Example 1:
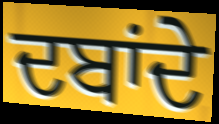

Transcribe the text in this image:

ਦਬਾਂਦੇ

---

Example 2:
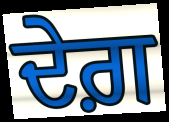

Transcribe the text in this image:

ਦੇਗ਼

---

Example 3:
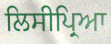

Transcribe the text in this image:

ਲਿਸੀਪ੍ਰਿਆ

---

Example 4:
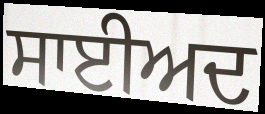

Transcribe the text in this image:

ਸਾਈਅਦ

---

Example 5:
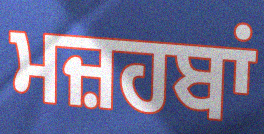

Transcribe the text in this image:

ਮਜ਼ਹਬਾਂ